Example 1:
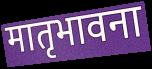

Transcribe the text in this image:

मातृभावना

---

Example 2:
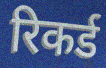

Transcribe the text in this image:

रिकर्ड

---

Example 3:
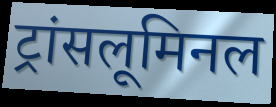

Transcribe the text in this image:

ट्रांसलूमिनल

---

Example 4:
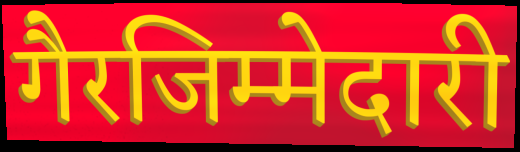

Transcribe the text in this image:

गैरजिम्मेदारी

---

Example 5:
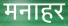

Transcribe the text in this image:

मनाहर